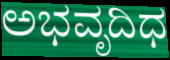
ಅಭವೃದಿಧ